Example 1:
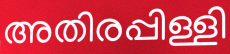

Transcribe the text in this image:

അതിരപ്പിള്ളി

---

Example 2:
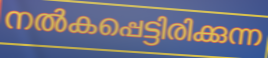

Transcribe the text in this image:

നൽകപ്പെട്ടിരിക്കുന്ന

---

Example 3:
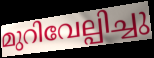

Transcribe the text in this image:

മുറിവേല്പിച്ചു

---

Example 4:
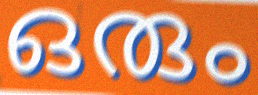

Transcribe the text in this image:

ഒരും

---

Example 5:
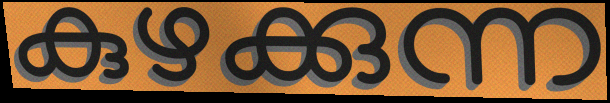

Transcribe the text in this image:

കുഴക്കുന്ന